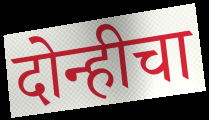
दोन्हीचा